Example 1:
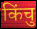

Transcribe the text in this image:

किंचु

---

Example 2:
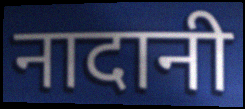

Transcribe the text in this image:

नादानी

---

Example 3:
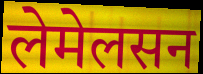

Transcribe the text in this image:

लेमेलसन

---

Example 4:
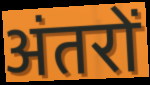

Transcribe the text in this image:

अंतरों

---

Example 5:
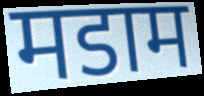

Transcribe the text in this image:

मडाम